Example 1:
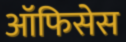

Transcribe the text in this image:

ऑफिसेस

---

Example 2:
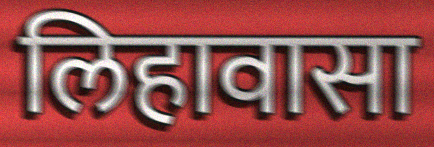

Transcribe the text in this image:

लिहावासा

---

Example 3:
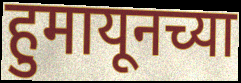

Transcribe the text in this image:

हुमायूनच्या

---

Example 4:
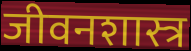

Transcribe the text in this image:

जीवनशास्त्र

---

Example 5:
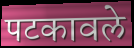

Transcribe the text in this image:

पटकावले